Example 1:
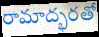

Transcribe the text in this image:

రామాద్భరతో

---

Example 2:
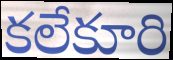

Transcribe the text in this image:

కలేకూరి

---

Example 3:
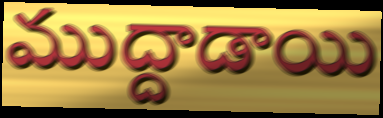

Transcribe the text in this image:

ముద్దాడాయి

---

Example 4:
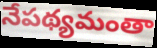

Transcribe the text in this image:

నేపథ్యమంతా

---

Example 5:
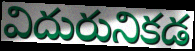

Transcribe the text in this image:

విదురునికడ